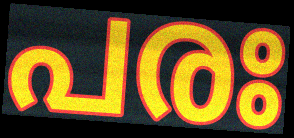
പരഃ